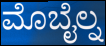
ಮೊಬೈಲ್ನ